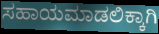
ಸಹಾಯಮಾಡಲಿಕ್ಕಾಗಿ